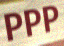
PPP